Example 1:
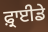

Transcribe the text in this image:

ਫ਼੍ਰਾਈਡੇ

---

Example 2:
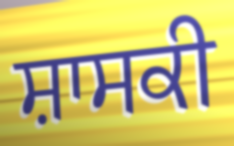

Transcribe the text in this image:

ਸ਼ਾਸਕੀ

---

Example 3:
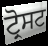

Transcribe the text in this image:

ਟ੍ਰੋਸਟ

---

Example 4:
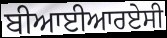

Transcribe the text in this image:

ਬੀਆਈਆਰਏਸੀ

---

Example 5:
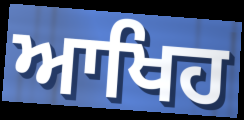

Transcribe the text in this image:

ਆਖਿਹ